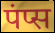
पंप्स